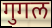
गुगल